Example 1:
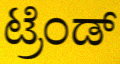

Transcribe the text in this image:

ಟ್ರೆಂಡ್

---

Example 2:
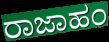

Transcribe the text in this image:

ರಾಜಾಹಂ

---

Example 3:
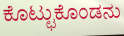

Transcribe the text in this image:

ಕೊಟ್ಟುಕೊಂಡನು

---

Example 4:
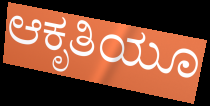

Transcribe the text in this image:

ಆಕೃತಿಯೂ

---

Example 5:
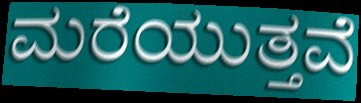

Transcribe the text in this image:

ಮರೆಯುತ್ತವೆ